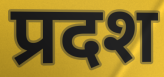
प्रदश